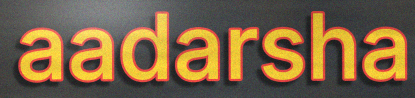
aadarsha